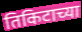
तिकिटाच्या